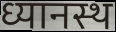
ध्यानस्थ